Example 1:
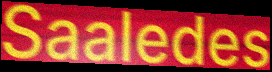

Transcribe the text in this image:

Saaledes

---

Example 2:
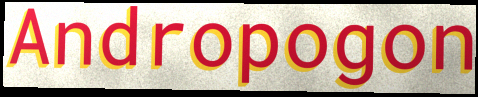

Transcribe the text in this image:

Andropogon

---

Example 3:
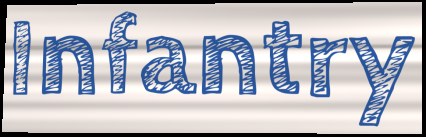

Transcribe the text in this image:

Infantry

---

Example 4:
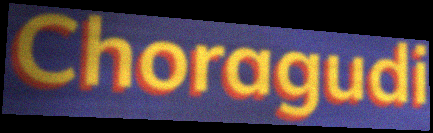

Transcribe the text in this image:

Choragudi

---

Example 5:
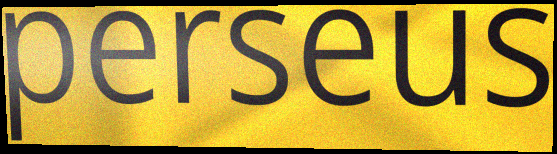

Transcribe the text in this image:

perseus